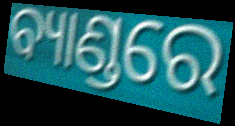
ବ୍ୟାଣ୍ଡରେ